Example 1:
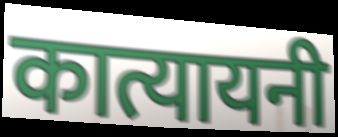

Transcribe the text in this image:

कात्यायनी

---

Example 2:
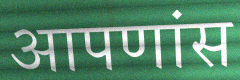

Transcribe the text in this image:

आपणांस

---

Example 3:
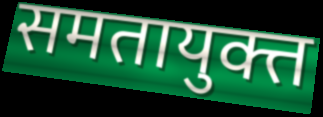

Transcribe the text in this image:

समतायुक्त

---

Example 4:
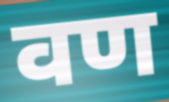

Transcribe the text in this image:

वण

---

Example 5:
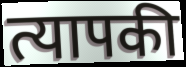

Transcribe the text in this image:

त्यापकी